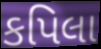
કપિલા